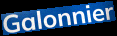
Galonnier